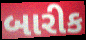
બારીક